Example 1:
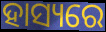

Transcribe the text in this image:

ହାସ୍ୟରେ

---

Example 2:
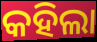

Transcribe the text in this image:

କହିଲା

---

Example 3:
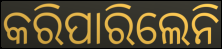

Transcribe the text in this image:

କରିପାରିଲେନି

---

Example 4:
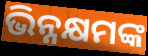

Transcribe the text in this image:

ଭିନ୍ନକ୍ଷମଙ୍କ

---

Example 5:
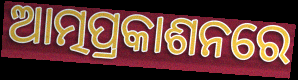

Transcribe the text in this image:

ଆତ୍ମପ୍ରକାଶନରେ